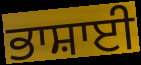
ਭਾਸ਼ਾਈ